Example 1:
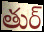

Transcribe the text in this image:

తుర్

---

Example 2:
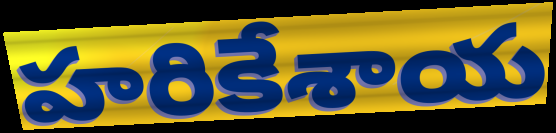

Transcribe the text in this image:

హరికేశాయ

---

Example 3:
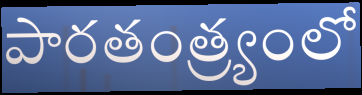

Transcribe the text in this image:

పారతంత్ర్యంలో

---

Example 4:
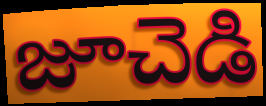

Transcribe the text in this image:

జూచెడి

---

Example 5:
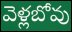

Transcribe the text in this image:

వెళ్లబోవు